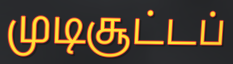
முடிசூட்டப்